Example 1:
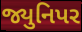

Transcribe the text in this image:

જ્યુનિપર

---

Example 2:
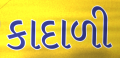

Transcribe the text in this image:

કાદાળી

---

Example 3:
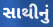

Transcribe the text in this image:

સાથીનું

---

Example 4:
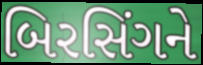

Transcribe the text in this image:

બિરસિંગને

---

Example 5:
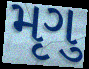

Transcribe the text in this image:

મૃગુ